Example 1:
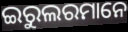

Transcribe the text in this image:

ଇରୁଲରମାନେ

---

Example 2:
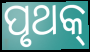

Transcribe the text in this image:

ପୃଥକ୍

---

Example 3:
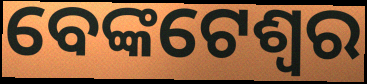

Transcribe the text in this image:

ବେଙ୍କଟେଶ୍ୱର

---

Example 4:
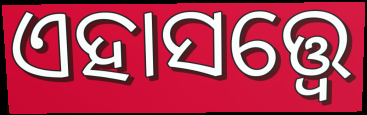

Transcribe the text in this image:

ଏହାସତ୍ତ୍ବେ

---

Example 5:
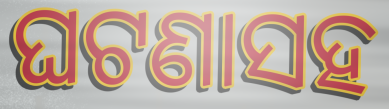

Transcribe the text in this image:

ଘଟଣାସହ